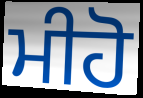
ਮੀਹੋ